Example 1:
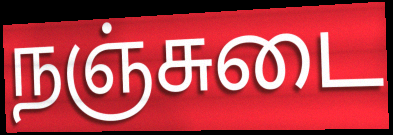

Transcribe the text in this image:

நஞ்சுடை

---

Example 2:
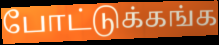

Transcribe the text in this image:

போட்டுக்கங்க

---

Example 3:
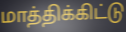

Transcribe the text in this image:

மாத்திக்கிட்டு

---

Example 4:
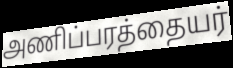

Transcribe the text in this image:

அணிப்பரத்தையர்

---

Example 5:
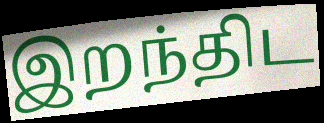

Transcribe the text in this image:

இறந்திட